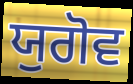
ਯੁਗੋਵ